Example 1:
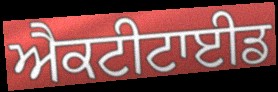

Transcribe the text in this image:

ਐਕਟੀਟਾਈਡ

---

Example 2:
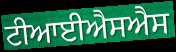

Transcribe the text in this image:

ਟੀਆਈਐਸਐਸ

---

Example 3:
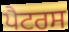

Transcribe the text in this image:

ਪੈਟਰਸ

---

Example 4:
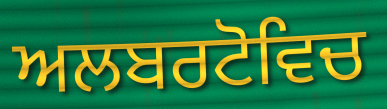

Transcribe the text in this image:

ਅਲਬਰਟੋਵਿਚ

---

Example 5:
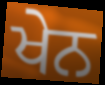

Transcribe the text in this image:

ਖੇਨ